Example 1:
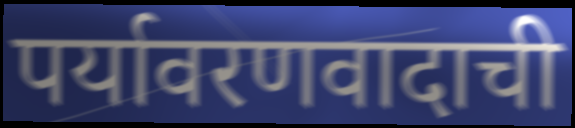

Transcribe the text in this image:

पर्यावरणवादाची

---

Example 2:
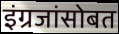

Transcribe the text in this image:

इंग्रजांसोबत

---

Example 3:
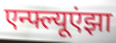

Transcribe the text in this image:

एन्फ्ल्यूएंझा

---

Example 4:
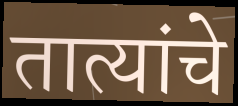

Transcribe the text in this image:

तात्यांचे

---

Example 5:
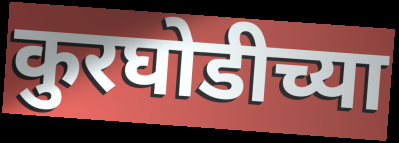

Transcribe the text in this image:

कुरघोडीच्या